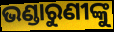
ଭଣ୍ଡାରୁଣୀଙ୍କୁ